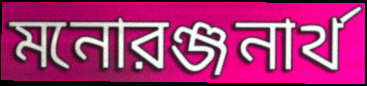
মনোরঞ্জনার্থ